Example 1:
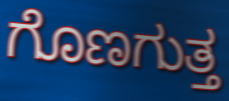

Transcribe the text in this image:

ಗೊಣಗುತ್ತ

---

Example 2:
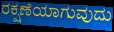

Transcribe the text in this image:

ರಕ್ಷಣೆಯಾಗುವುದು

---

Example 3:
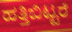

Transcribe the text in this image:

ಹತ್ತಿಬಿಟ್ಟರೆ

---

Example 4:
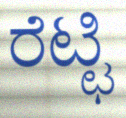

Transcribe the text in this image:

ರೆಟ್ಟಿ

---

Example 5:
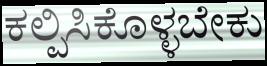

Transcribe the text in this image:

ಕಲ್ಪಿಸಿಕೊಳ್ಳಬೇಕು